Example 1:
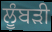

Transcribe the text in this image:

ਲੂੰਬੜੀ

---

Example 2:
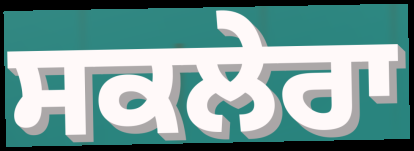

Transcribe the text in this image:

ਸਕਲੇਰਾ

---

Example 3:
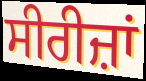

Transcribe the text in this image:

ਸੀਰੀਜ਼ਾਂ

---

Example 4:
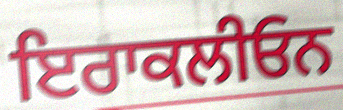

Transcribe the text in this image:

ਇਰਾਕਲੀਓਨ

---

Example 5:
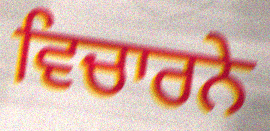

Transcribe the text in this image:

ਵਿਚਾਰਨੇ